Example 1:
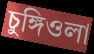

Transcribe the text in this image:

চুঙ্গিওলা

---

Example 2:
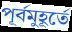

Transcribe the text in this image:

পূর্বমুহূর্তে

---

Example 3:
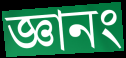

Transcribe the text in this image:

জ্ঞানং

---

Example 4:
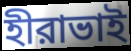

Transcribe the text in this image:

হীরাভাই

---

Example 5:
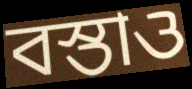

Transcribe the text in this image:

বস্তাও